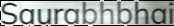
Saurabhbhai